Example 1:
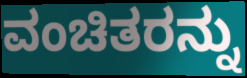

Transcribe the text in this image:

ವಂಚಿತರನ್ನು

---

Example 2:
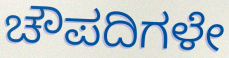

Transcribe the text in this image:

ಚೌಪದಿಗಳೇ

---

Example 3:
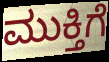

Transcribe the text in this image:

ಮುಕ್ತಿಗೆ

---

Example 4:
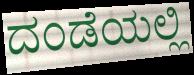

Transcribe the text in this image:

ದಂಡೆಯಲ್ಲಿ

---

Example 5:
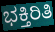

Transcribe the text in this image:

ಭಕ್ತಿರಿತಿ